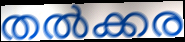
തൽക്കര